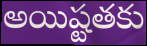
అయిష్టతకు